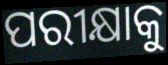
ପରୀକ୍ଷାକୁ